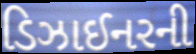
ડિઝાઈનરની